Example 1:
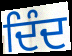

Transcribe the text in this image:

ਦਿੰਦ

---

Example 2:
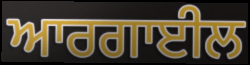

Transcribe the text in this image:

ਆਰਗਾਈਲ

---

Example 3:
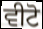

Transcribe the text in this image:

ਵੀਟੋ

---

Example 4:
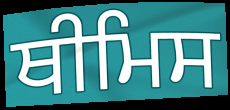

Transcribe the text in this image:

ਥੀਮਿਸ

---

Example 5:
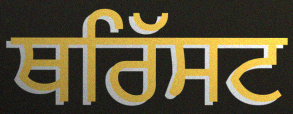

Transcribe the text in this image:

ਥਰਿੱਸਟ